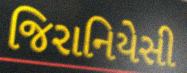
જિરાનિયેસી